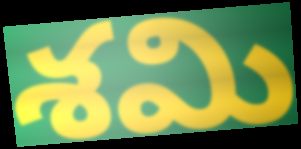
శమి